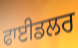
ਫਾਈਡਲਰ